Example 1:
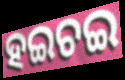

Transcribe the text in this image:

ହଇଚଇ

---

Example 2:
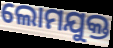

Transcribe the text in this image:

ଲୋମଯୁକ୍ତ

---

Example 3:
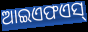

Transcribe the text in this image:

ଆଇଏଫଏସ୍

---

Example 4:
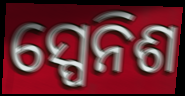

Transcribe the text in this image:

ସ୍ପେନିଶ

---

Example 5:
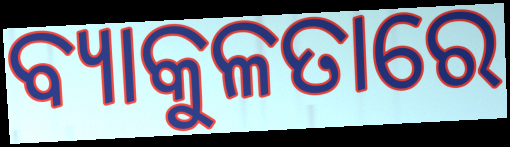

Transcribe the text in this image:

ବ୍ୟାକୁଳତାରେ